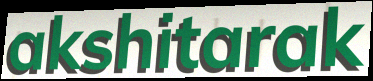
akshitarak